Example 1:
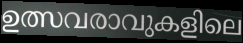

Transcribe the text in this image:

ഉത്സവരാവുകളിലെ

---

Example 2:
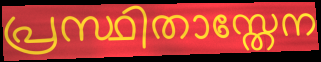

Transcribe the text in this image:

പ്രസ്ഥിതാസ്തേന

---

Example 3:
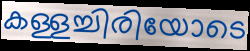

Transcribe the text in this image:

കള്ളച്ചിരിയോടെ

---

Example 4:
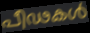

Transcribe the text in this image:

പീഢകൾ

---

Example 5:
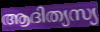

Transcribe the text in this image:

ആദിത്യസ്യ